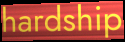
hardship